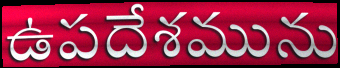
ఉపదేశమును